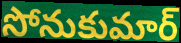
సోనుకుమార్